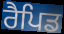
ਰੈਪਿਡ